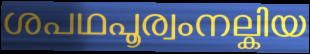
ശപഥപൂര്വംനല്കിയ